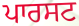
ਪਾਰਸਟ